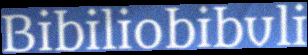
Bibiliobibuli